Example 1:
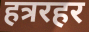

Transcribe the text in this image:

हत्ररहर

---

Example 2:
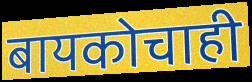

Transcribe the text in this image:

बायकोचाही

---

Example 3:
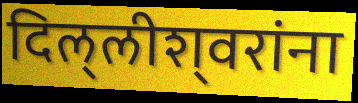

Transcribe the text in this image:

दिल्लीश्वरांना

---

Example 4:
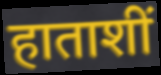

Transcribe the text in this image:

हाताशीं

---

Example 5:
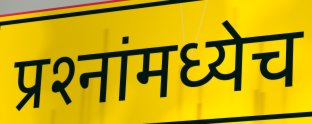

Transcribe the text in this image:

प्रश्नांमध्येच